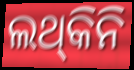
ଲଥ୍‌କିନି